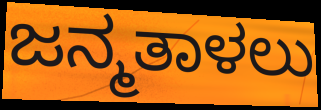
ಜನ್ಮತಾಳಲು